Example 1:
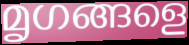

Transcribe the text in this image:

മൃഗങ്ങളെ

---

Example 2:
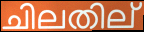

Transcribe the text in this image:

ചിലതില്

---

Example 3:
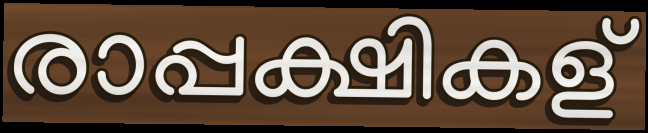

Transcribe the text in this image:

രാപ്പക്ഷികള്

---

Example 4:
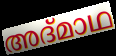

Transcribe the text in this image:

അദ്മാഥ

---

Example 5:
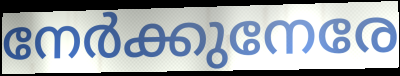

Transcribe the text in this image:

നേർക്കുനേരേ